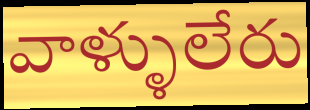
వాళ్ళులేరు